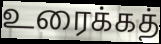
உரைக்கத்